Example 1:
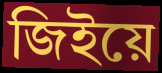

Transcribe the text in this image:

জিইয়ে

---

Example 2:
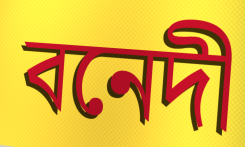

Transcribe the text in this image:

বনেদী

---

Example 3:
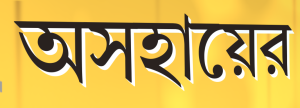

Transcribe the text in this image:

অসহায়ের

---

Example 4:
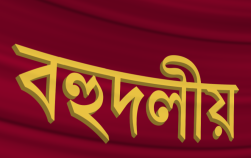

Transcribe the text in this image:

বহুদলীয়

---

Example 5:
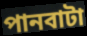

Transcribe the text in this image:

পানবাটা